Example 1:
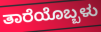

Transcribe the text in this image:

ತಾರೆಯೊಬ್ಬಳು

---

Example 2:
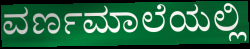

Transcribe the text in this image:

ವರ್ಣಮಾಲೆಯಲ್ಲಿ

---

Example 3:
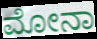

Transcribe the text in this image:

ಮೋನಾ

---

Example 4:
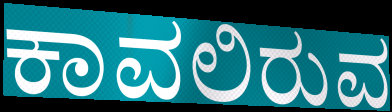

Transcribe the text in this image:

ಕಾವಲಿರುವ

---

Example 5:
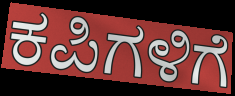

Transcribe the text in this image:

ಕಪಿಗಳಿಗೆ